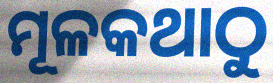
ମୂଳକଥାଠୁ